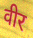
वीर